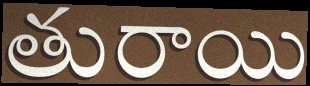
తురాయి